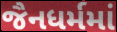
જૈનધર્મમાં